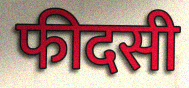
फीदसी